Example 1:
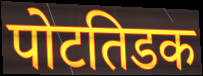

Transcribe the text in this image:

पोटतिडक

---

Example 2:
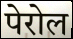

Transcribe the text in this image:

पेरोल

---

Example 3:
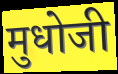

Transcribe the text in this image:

मुधोजी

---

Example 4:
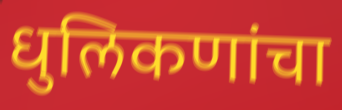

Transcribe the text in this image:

धुलिकणांचा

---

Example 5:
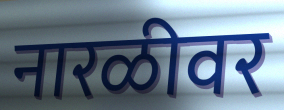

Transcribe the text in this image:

नारळीवर